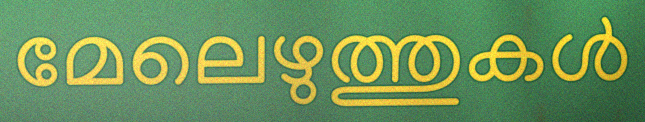
മേലെഴുത്തുകൾ